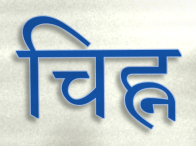
चिह्न